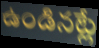
ఉండినట్లే